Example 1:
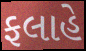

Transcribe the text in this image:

ફલાહે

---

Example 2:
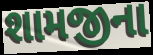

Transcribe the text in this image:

શામજીના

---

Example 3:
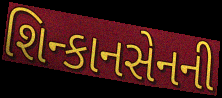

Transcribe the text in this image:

શિન્કાનસેનની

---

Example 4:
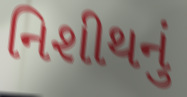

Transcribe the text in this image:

નિશીથનું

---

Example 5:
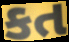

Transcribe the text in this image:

કત